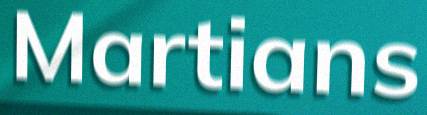
Martians